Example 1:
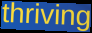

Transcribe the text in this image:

thriving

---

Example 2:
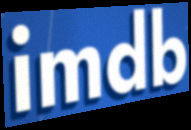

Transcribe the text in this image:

imdb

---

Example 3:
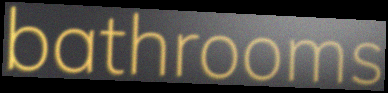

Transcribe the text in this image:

bathrooms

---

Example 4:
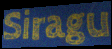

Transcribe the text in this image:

Siragu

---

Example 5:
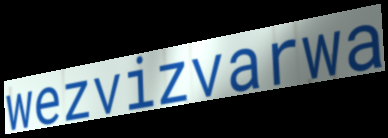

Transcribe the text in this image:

wezvizvarwa